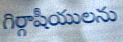
గిర్గాషీయులను